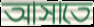
আসাতে